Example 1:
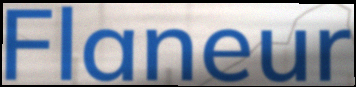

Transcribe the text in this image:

Flaneur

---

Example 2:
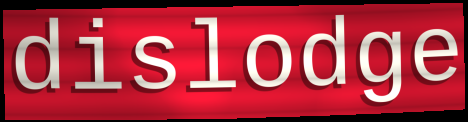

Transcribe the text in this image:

dislodge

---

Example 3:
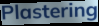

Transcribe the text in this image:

Plastering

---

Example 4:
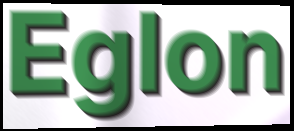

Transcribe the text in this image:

Eglon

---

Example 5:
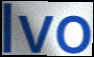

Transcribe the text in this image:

Ivo